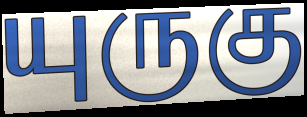
யுருகு